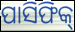
ପାସିଫିକ୍